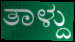
ತಾಳ್ದು